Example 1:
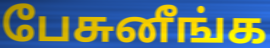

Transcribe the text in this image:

பேசுனீங்க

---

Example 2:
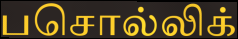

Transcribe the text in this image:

பசொல்லிக்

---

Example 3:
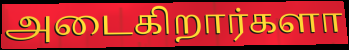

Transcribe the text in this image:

அடைகிறார்களா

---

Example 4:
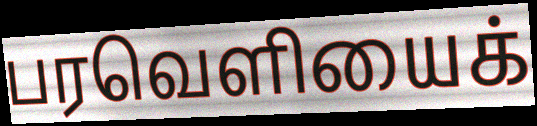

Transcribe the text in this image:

பரவெளியைக்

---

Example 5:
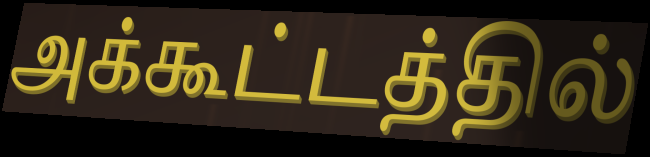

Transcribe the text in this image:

அக்கூட்டத்தில்